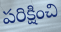
పరిక్షించి